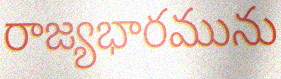
రాజ్యభారమును